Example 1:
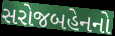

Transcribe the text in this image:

સરોજબહેનનો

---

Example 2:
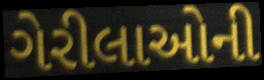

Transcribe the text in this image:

ગેરીલાઓની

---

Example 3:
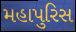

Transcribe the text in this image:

મહાપુરિસ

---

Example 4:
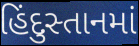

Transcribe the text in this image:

હિંદુસ્તાનમાં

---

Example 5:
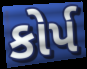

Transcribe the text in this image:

કોર્પ